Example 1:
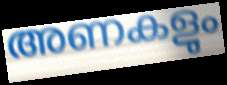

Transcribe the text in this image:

അണകളും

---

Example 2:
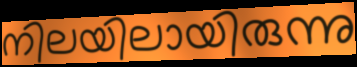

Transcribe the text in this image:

നിലയിലായിരുന്നു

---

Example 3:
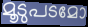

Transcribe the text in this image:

മൂടുപടമോ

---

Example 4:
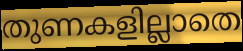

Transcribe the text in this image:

തുണകളില്ലാതെ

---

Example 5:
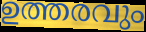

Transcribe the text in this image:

ഉത്തരവും